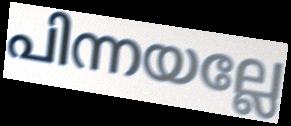
പിന്നയല്ലേ